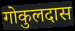
गोकुलदास